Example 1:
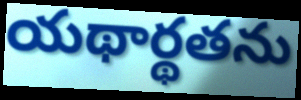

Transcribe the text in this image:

యథార్థతను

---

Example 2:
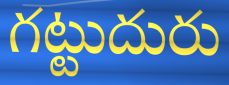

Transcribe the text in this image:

గట్టుదురు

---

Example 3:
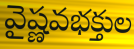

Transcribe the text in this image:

వైష్ణవభక్తుల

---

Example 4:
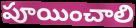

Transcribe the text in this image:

పూయించాలి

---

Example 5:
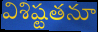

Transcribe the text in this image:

విశిష్టతనూ